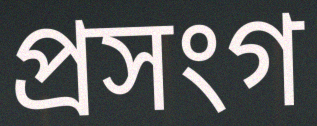
প্রসংগ